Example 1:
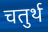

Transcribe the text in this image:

चतुर्थ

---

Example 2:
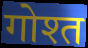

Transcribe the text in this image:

गोश्त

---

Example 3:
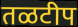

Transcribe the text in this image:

तळटीप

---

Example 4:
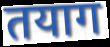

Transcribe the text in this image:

तयाग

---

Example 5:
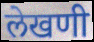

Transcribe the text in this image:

लेखणी